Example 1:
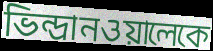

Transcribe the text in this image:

ভিন্দ্রানওয়ালেকে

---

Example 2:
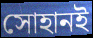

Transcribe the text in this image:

সোহানই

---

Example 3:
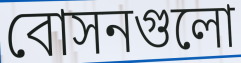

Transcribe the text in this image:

বোসনগুলো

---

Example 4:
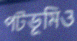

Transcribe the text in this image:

পটভূমিও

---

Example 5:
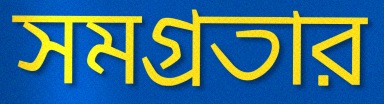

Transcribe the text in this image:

সমগ্রতার